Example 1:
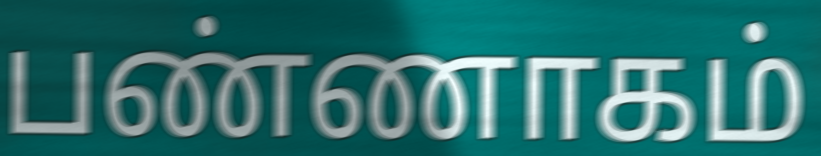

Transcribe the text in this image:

பண்ணாகம்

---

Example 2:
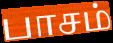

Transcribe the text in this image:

பாசம்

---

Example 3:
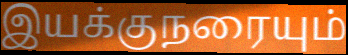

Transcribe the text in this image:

இயக்குநரையும்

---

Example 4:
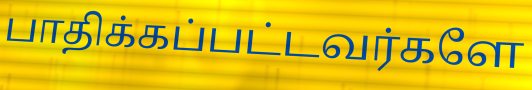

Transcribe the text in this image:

பாதிக்கப்பட்டவர்களே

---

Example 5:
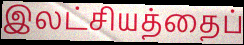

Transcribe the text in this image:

இலட்சியத்தைப்